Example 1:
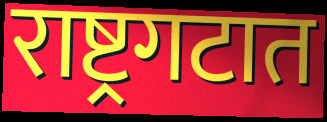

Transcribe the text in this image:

राष्ट्रगटात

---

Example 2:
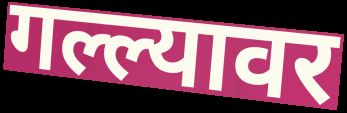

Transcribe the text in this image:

गल्ल्यावर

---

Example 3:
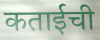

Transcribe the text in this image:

कताईची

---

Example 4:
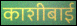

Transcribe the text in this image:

काशीबाई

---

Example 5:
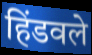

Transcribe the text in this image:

हिंडवले